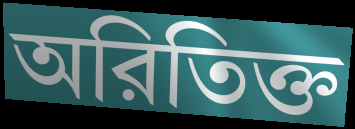
অরিতিক্ত